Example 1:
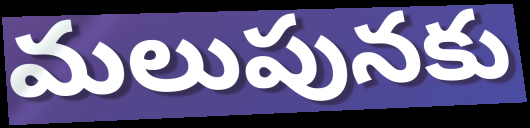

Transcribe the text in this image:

మలుపునకు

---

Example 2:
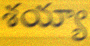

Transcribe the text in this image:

శయ్యా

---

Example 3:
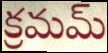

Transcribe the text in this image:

క్రమమ్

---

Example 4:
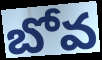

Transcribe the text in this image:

బోవ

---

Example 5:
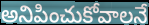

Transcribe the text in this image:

అనిపించుకోవాలనే